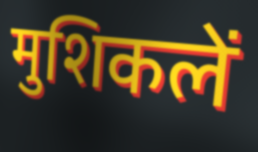
मुशिकलें